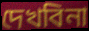
দেখবিনা